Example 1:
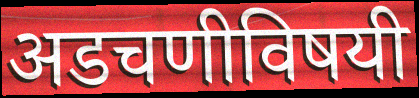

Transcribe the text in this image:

अडचणीविषयी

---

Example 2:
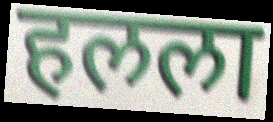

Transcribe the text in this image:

हलला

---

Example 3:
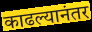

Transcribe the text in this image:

काढल्यानंतर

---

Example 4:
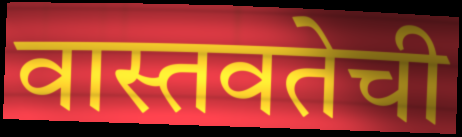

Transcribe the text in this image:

वास्तवतेची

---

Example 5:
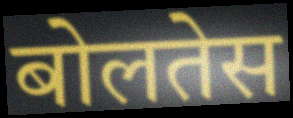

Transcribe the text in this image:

बोलतेस